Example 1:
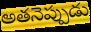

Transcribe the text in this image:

అతనెప్పుడు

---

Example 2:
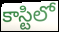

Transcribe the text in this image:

కాస్టిలో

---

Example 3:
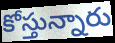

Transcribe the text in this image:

కోస్తున్నారు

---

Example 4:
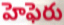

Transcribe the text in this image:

హెఫెరు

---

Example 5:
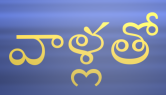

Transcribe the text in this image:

వాళ్లతో